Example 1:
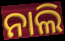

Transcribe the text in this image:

ନାଲି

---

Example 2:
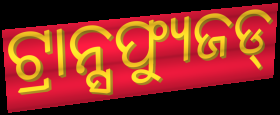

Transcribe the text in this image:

ଟ୍ରାନ୍ସଫ୍ୟୁଜଡ୍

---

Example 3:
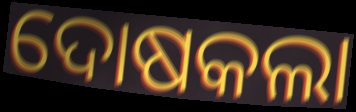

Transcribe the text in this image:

ଦୋଷକଲା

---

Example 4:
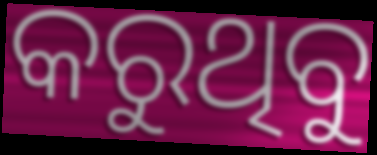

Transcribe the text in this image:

କରୁଥିବୁ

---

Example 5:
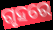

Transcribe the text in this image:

ଗୃହରେ